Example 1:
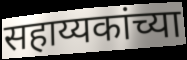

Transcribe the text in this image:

सहाय्यकांच्या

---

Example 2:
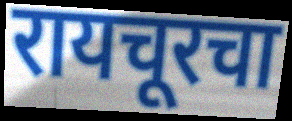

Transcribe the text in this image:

रायचूरचा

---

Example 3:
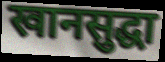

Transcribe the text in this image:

खानसुद्धा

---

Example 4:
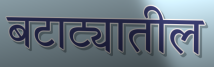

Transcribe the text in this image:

बटाट्यातील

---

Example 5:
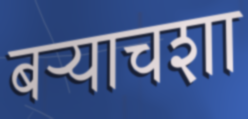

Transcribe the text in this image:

बर्‍याचशा